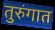
तुरुंगात